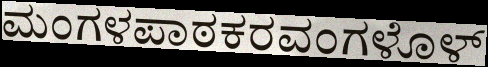
ಮಂಗಳಪಾಠಕರವಂಗಳೊಳ್